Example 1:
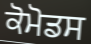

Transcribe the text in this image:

ਕੋਮੋਡਸ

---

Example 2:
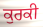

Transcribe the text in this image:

ਕੁਰਕੀ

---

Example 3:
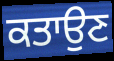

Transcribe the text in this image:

ਕਤਾਉਣ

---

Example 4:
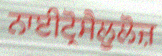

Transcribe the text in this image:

ਨਾਈਟ੍ਰੋਸੈਲੂਲੋਜ਼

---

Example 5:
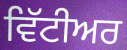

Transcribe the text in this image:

ਵਿੱਟੀਅਰ